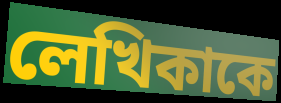
লেখিকাকে